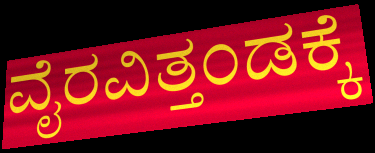
ವೈರವಿತ್ತಂಡಕ್ಕೆ